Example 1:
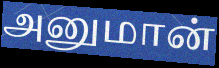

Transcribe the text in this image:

அனுமான்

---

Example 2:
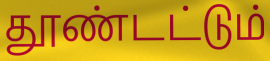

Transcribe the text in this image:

தூண்டட்டும்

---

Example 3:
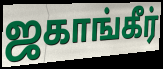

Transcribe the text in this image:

ஜகாங்கீர்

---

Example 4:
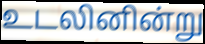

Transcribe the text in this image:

உடலினின்று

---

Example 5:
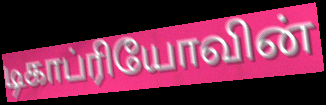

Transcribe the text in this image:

டிகாப்ரியோவின்